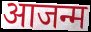
आजन्म